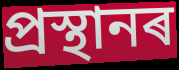
প্ৰস্থানৰ